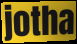
jotha